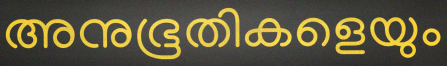
അനുഭൂതികളെയും